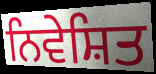
ਨਿਵੇਸ਼ਿਤ